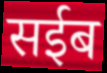
सईब